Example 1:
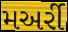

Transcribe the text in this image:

મઅર્રી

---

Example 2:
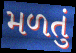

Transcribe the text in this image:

મળતું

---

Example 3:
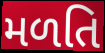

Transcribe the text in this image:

મળતિ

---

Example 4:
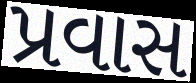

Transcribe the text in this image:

પ્રવાસ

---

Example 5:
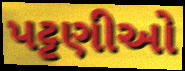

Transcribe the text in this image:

પટ્ટણીઓ